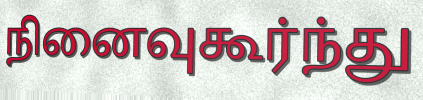
நினைவுகூர்ந்து